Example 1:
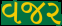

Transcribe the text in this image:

વજર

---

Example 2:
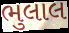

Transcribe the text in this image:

ભુલાલ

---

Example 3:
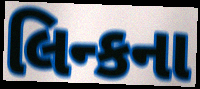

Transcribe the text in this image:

લિન્કના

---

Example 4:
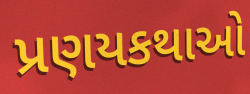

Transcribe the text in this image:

પ્રણયકથાઓ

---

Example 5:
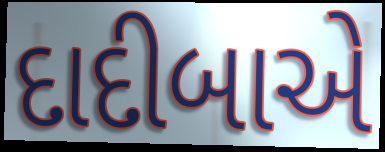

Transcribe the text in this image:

દાદીબાએ